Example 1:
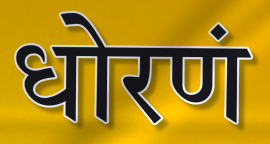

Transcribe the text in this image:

धोरणं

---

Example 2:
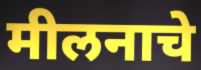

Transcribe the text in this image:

मीलनाचे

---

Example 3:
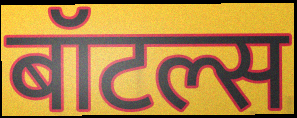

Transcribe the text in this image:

बॉटल्स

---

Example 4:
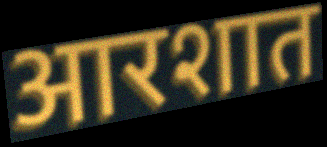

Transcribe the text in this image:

आरशात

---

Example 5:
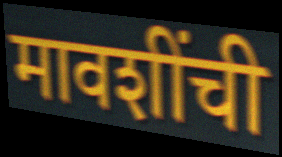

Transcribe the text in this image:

मावशींची